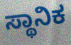
ಸ್ಥಾನಿಕ